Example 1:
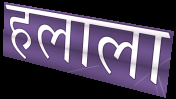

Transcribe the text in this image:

हलाला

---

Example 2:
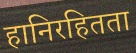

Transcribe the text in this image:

हानिरहितता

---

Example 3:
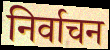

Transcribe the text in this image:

निर्वाचन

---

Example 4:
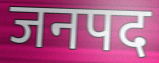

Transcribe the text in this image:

जनपद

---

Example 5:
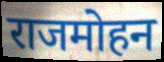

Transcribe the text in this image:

राजमोहन